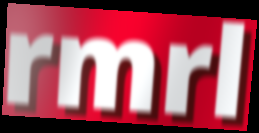
rmrl